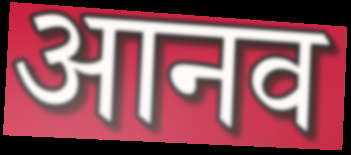
आनव